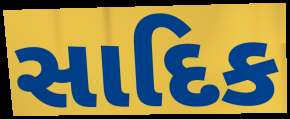
સાદિક